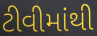
ટીવીમાંથી